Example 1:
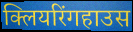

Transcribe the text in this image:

क्लियरिंगहाउस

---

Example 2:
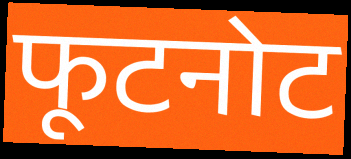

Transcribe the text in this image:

फूटनोट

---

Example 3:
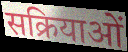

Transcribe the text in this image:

सक्रियाओं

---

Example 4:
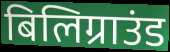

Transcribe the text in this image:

बिलिग्राउंड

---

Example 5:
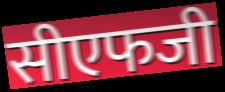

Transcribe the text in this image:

सीएफजी